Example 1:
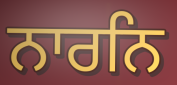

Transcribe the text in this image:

ਨਾਰਨਿ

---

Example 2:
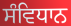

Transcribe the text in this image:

ਸੰਵਿਧਾਨ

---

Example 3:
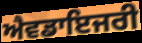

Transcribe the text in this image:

ਐਵਡਾਇਜਰੀ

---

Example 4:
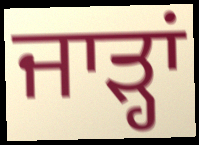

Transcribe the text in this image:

ਜਾੜ੍ਹਾਂ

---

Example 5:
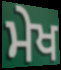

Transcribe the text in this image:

ਮੇਖ